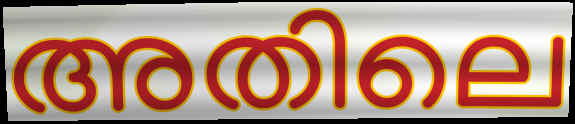
അതിലെ